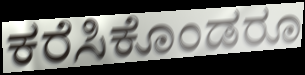
ಕರೆಸಿಕೊಂಡರೂ